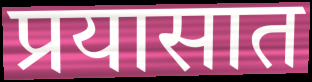
प्रयासात